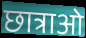
छात्राओ